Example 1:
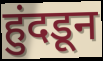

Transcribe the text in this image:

हुंदडून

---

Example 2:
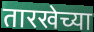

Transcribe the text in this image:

तारखेच्या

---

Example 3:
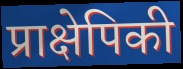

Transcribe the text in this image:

प्राक्षेपिकी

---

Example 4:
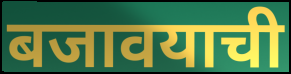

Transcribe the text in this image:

बजावयाची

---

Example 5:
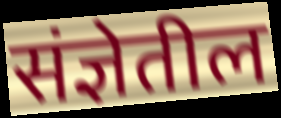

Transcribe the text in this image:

संज्ञेतील